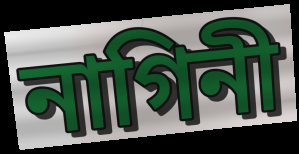
নাগিনী